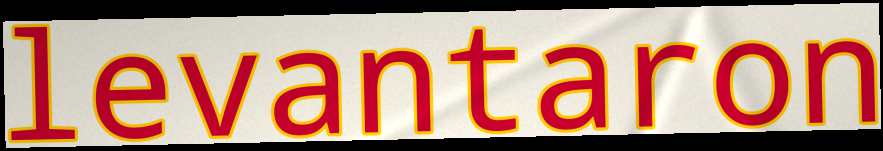
levantaron